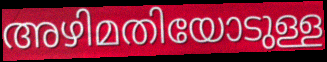
അഴിമതിയോടുള്ള